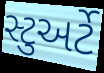
સ્ટુઅર્ટે